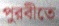
পুরবীতে